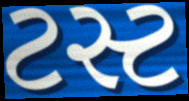
ટસ્ટ